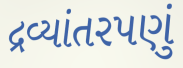
દ્રવ્યાંતરપણું